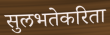
सुलभतेकरिता